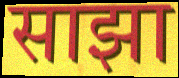
साझा